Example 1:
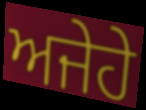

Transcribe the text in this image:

ਅਜੇਹੇ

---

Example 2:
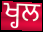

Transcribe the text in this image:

ਖ੍ਹਲ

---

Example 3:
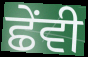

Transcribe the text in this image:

ਛੇੰਵੀ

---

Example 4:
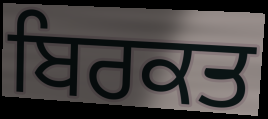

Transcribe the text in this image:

ਬਿਰਕਤ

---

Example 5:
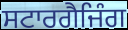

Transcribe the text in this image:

ਸਟਾਰਗੈਜਿੰਗ